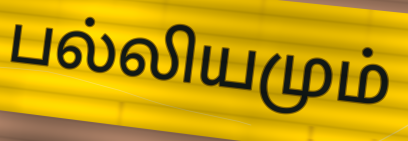
பல்லியமும்